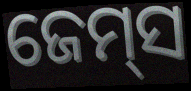
ଜେମ୍‌ସ